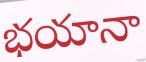
భయానా